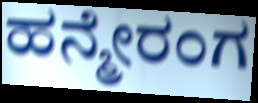
ಹನ್ಮೇರಂಗ